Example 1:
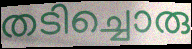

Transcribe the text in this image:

തടിച്ചൊരു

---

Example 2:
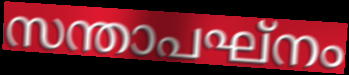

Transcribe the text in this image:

സന്താപഘ്നം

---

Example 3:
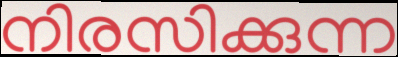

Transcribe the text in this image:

നിരസിക്കുന്ന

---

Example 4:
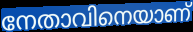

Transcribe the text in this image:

നേതാവിനെയാണ്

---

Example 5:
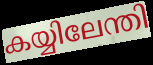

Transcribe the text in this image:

കയ്യിലേന്തി